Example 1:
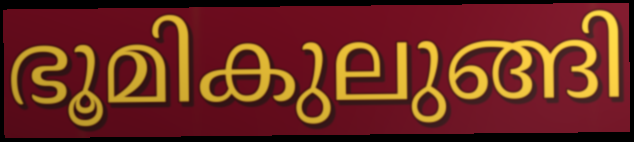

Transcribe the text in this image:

ഭൂമികുലുങ്ങി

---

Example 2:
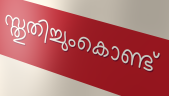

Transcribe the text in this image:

സ്തുതിച്ചുംകൊണ്ട്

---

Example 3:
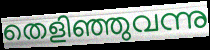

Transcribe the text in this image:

തെളിഞ്ഞുവന്നു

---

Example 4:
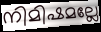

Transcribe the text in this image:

നിമിഷമല്ലേ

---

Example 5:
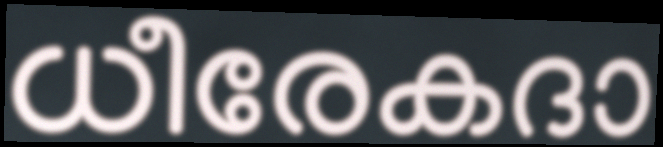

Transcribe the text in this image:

ധീരേകദാ